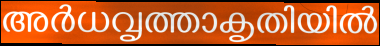
അർധവൃത്താകൃതിയിൽ